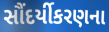
સૌંદર્યીકરણના